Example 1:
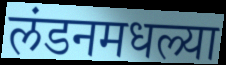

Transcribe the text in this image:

लंडनमधल्या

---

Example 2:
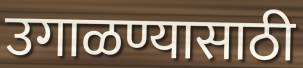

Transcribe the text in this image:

उगाळण्यासाठी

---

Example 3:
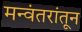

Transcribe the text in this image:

मन्वंतरांतून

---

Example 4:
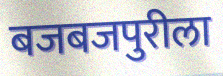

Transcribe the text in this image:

बजबजपुरीला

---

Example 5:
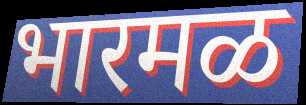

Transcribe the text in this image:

भारमळ